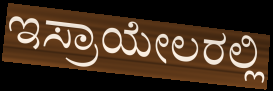
ಇಸ್ರಾಯೇಲರಲ್ಲಿ